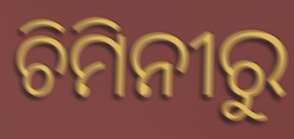
ଚିମିନୀରୁ